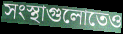
সংস্থাগুলোতেও